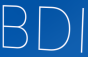
BDI